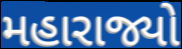
મહારાજ્યો